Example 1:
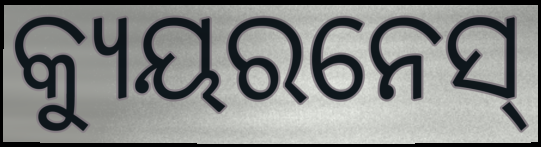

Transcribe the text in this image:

କ୍ୟୁୟରନେସ୍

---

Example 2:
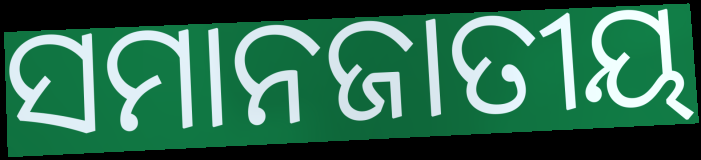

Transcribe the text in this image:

ସମାନଜାତୀୟ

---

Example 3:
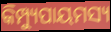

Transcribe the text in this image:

କିମ୍ପ୍ୟୁପାୟମସ୍ୟ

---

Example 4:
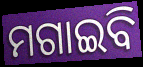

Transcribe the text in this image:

ମଗାଇବି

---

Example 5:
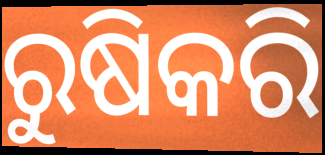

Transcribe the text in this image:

ରୁଷିକରି